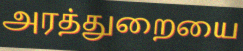
அரத்துறையை